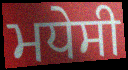
ਮਧੇਸੀ